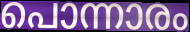
പൊന്നാരം